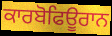
ਕਾਰਬੋਫਿਊਰਾਨ